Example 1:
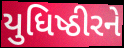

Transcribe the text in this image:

યુધિષ્ઠીરને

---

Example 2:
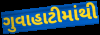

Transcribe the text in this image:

ગુવાહાટીમાંથી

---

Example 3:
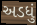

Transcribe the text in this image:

અડધું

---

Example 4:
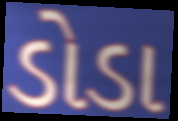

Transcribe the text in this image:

ડોડા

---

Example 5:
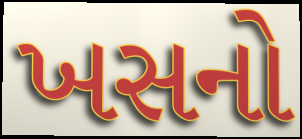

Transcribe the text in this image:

ખસનો